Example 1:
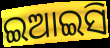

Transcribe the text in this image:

ଇଆଇସି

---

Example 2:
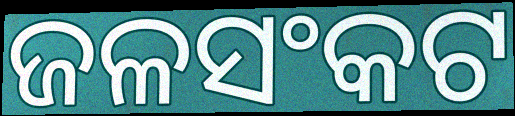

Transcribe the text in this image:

ଜଳସଂକଟ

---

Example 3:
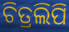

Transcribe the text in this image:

ଚିତ୍ରଲିପି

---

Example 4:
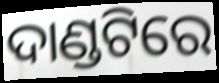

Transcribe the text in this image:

ଦାଣ୍ଡଟିରେ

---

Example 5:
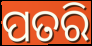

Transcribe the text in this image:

ପତରି